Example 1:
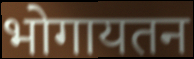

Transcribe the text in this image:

भोगायतन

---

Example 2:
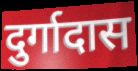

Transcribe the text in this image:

दुर्गादास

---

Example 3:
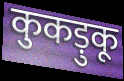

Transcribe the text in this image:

कुकड़ुकू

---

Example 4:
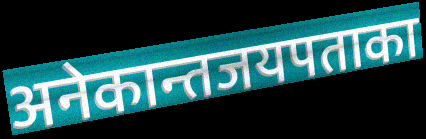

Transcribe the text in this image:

अनेकान्तजयपताका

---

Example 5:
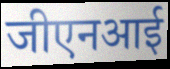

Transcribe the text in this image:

जीएनआई